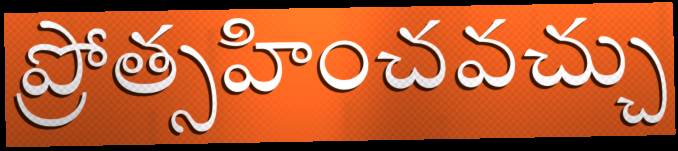
ప్రోత్సహించవచ్చు